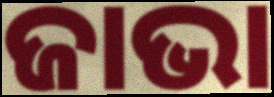
ଜାଭା